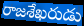
రాజశేఖరుడు